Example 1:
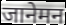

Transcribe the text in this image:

जानेमन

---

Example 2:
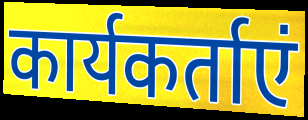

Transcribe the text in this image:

कार्यकर्ताएं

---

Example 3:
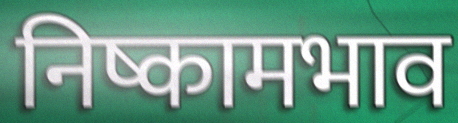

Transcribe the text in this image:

निष्कामभाव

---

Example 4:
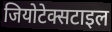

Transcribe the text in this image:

जियोटेक्सटाइल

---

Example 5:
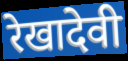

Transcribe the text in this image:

रेखादेवी